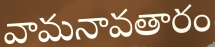
వామనావతారం